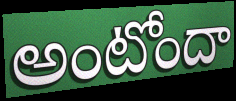
అంటోందా